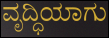
ವೃದ್ಧಿಯಾಗು